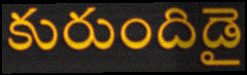
కురుందిడై